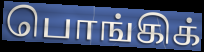
பொங்கிக்